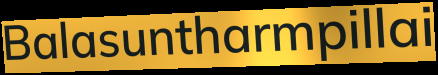
Balasuntharmpillai